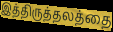
இத்திருத்தலத்தை